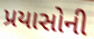
પ્રયાસોની